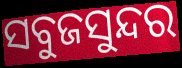
ସବୁଜସୁନ୍ଦର